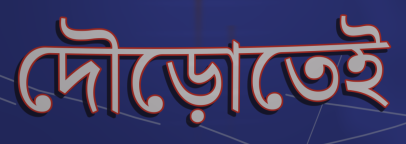
দৌড়োতেই